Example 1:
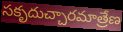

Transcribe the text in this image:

సకృదుచ్చారమాత్రేణ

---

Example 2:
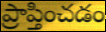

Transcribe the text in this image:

ప్రాప్తించడం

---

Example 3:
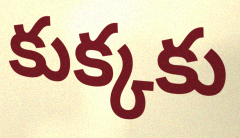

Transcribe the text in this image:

కుక్కకు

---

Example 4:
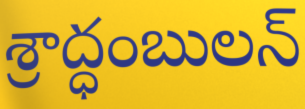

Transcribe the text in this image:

శ్రాద్ధంబులన్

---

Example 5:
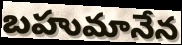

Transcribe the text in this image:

బహుమానేన